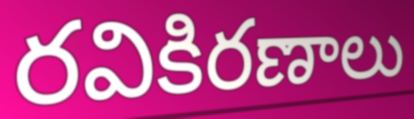
రవికిరణాలు